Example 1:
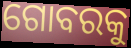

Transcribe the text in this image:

ଗୋବରକୁ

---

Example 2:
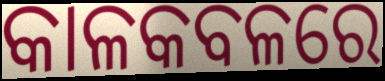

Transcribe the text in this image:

କାଳକବଳରେ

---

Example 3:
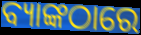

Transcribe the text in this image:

ବ୍ୟାଙ୍କଠାରେ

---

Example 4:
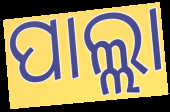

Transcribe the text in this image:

ପାଲ୍ଲା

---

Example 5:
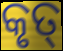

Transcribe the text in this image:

କୃତ୍